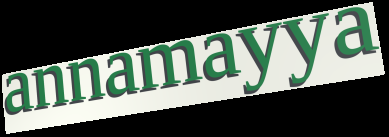
annamayya